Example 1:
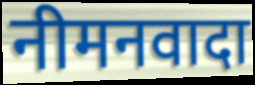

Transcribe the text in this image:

नीमनवादा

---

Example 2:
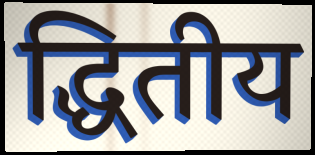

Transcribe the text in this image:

द्धितीय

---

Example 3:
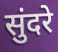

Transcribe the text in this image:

सुंदरे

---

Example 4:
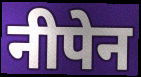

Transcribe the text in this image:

नीपेन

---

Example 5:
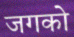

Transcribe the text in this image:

जगको